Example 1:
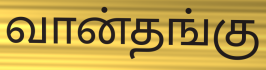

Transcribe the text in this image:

வான்தங்கு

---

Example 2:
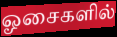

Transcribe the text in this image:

ஓசைகளில்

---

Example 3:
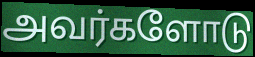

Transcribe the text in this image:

அவர்களோடு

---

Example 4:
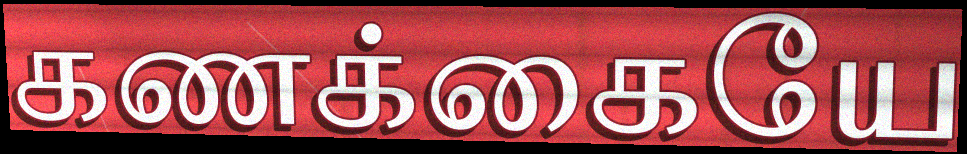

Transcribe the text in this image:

கணக்கையே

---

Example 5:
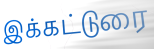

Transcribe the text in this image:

இக்கட்டுரை